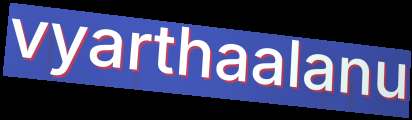
vyarthaalanu